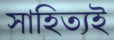
সাহিত্য়ই